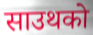
साउथको